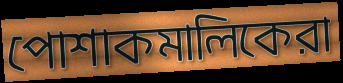
পোশাকমালিকেরা